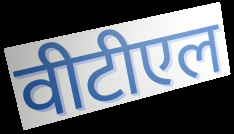
वीटीएल